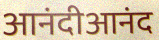
आनंदीआनंद